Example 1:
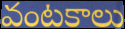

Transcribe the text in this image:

వంటకాలు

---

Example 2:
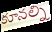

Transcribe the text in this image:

కూనల్ని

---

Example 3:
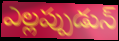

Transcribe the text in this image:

ఎల్లప్పుడున్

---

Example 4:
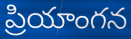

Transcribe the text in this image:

ప్రియాంగన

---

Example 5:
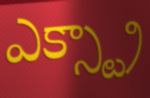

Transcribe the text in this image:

ఎక్స్ట్రా